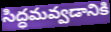
సిద్ధమవ్వడానికి